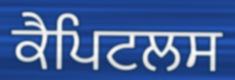
ਕੈਪਿਟਲਸ